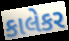
કાલેકર